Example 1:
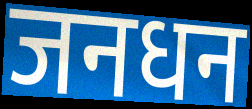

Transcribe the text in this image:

जनधन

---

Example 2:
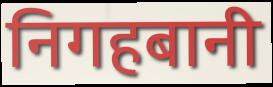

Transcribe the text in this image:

निगहबानी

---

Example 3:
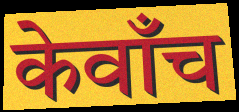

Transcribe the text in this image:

केवाँच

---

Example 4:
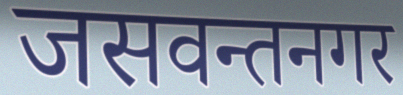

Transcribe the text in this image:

जसवन्तनगर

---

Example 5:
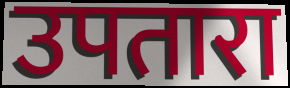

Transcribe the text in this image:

उपतारा